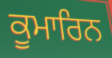
ਕੂਮਾਰਿਨ